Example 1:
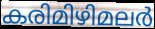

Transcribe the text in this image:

കരിമിഴിമലർ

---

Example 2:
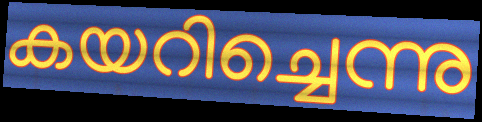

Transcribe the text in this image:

കയറിച്ചെന്നു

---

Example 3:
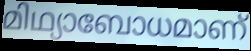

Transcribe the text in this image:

മിഥ്യാബോധമാണ്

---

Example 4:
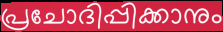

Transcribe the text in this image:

പ്രചോദിപ്പിക്കാനും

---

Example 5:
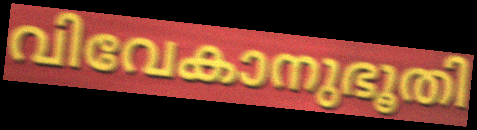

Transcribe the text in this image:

വിവേകാനുഭൂതി